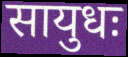
सायुधः